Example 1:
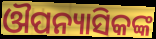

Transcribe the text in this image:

ଔପନ୍ୟାସିକଙ୍କ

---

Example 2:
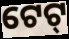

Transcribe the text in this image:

ଟେଟ୍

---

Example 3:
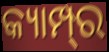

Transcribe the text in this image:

କ୍ୟାମ୍ପ୍‍ର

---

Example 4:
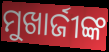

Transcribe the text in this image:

ମୁଖାର୍ଜୀଙ୍କ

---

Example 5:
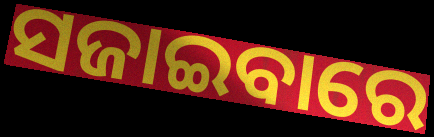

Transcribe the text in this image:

ସଜାଇବାରେ